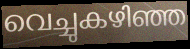
വെച്ചുകഴിഞ്ഞ